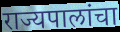
राज्यपालांचा